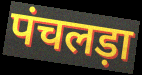
पंचलड़ा